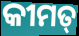
କୀମତ୍